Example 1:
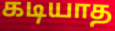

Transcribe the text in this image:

கடியாத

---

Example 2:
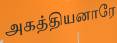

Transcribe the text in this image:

அகத்தியனாரே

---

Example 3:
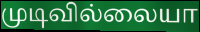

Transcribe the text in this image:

முடிவில்லையா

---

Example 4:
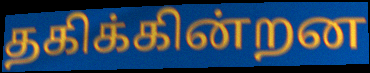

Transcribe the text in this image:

தகிக்கின்றன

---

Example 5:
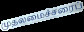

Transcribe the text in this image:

முதலமைச்சரைப்